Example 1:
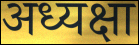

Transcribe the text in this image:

अध्यक्षा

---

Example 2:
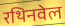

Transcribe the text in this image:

रथिनवेल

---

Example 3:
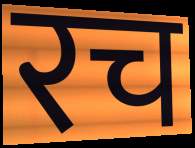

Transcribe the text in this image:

रच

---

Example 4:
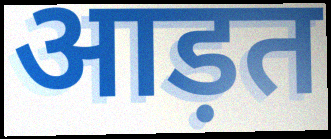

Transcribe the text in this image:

आड़त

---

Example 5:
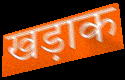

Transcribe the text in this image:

खड़ाक